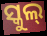
ସ୍କୁଲ୍